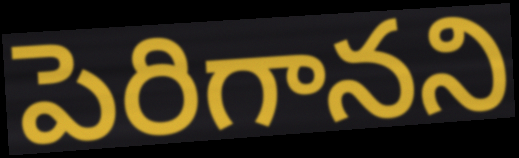
పెరిగానని